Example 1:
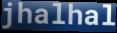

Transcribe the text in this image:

jhalhal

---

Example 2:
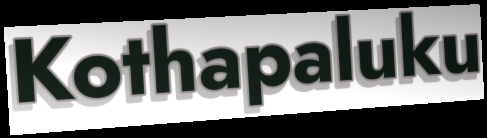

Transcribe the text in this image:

Kothapaluku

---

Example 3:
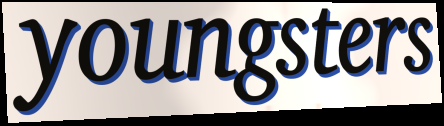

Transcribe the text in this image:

youngsters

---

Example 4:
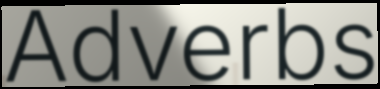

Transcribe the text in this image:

Adverbs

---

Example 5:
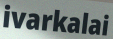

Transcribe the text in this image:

ivarkalai